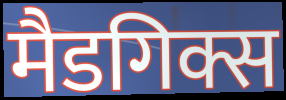
मैडगिक्स